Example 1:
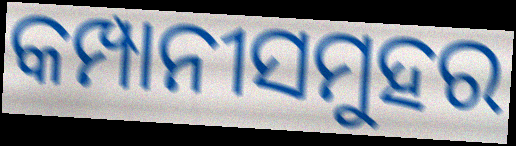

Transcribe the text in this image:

କମ୍ପାନୀସମୁହର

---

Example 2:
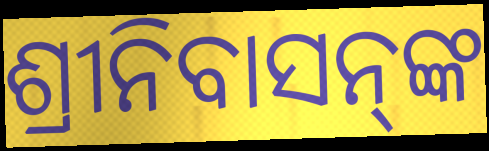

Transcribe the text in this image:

ଶ୍ରୀନିବାସନ୍‌ଙ୍କ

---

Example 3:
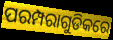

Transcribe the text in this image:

ପରମ୍ପରାଗୁଡିକରେ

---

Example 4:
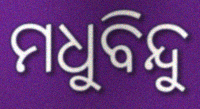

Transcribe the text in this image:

ମଧୁବିନ୍ଦୁ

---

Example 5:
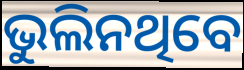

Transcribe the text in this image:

ଭୁଲିନଥିବେ